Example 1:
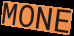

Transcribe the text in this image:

MONE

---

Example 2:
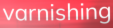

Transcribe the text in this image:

varnishing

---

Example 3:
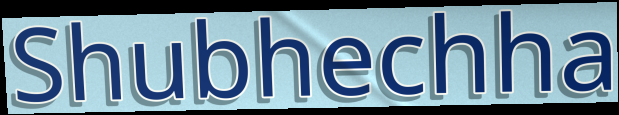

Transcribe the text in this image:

Shubhechha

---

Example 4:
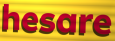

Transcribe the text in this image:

hesare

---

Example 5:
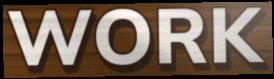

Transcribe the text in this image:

WORK